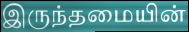
இருந்தமையின்